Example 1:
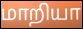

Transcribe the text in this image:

மாறியா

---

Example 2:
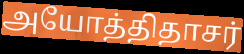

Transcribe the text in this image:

அயோத்திதாசர்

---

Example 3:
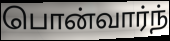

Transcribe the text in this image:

பொன்வார்ந்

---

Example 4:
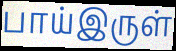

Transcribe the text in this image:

பாய்இருள்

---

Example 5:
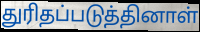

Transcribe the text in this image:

துரிதப்படுத்தினாள்